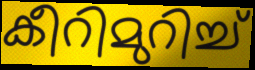
കീറിമുറിച്ച്